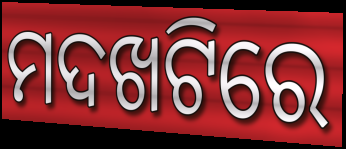
ମଦଖଟିରେ